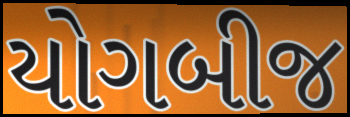
યોગબીજ